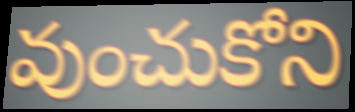
వుంచుకోని